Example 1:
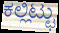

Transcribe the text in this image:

ಕಲ್ಲಿಟ್ಟು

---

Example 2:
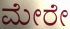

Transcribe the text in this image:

ಮೇರೇ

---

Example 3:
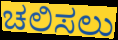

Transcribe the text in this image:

ಚಲಿಸಲು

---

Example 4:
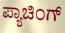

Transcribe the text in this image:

ಪ್ಯಾಚಿಂಗ್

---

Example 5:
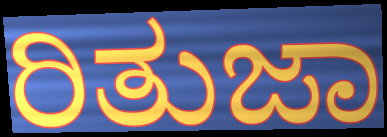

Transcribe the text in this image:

ರಿತುಜಾ